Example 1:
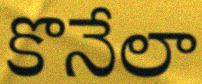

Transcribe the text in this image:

కొనేలా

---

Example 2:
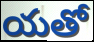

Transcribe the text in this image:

యతో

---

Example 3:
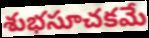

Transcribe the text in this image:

శుభసూచకమే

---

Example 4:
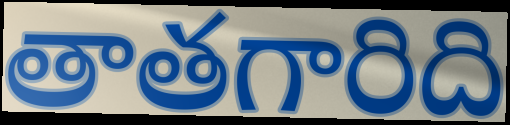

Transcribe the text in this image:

తాతగారిది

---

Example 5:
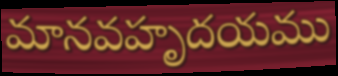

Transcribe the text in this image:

మానవహృదయము